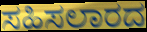
ಸಹಿಸಲಾರದ